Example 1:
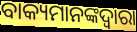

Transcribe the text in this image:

ବାକ୍ୟମାନଙ୍କଦ୍ୱାରା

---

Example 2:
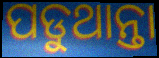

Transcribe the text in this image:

ପଡୁଥାନ୍ତା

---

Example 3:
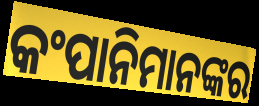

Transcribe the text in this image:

କଂପାନିମାନଙ୍କର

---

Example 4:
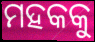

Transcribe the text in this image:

ମହକକୁ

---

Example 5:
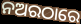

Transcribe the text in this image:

ନଅରଠାରେ